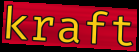
kraft